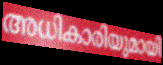
അധികാരിയുമായി